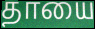
தாயை